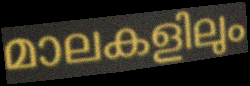
മാലകളിലും